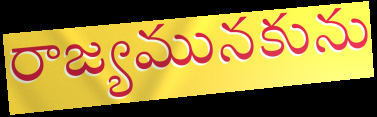
రాజ్యమునకును